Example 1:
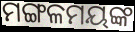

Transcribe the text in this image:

ମଙ୍ଗଳମୟଙ୍କ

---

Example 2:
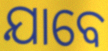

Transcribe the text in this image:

ଯାବେ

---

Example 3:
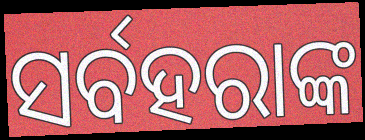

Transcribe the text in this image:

ସର୍ବହରାଙ୍କ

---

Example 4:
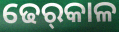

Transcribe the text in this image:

ଢେର୍‌କାଳ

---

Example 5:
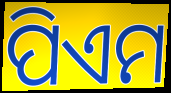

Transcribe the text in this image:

ପିଏମ